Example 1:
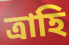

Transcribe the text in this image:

ত্রাহি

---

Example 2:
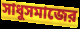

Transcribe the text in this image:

সাধুসমাজের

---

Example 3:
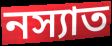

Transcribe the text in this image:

নস্যাত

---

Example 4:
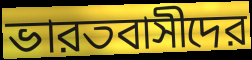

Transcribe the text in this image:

ভারতবাসীদের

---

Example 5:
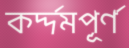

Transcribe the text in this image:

কর্দ্দমপূর্ণ